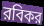
রবিকর